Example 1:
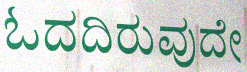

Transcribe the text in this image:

ಓದದಿರುವುದೇ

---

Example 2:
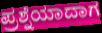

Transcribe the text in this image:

ಪ್ರಶ್ನೆಯಾದಾಗ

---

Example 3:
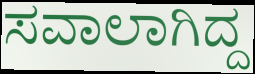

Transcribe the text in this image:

ಸವಾಲಾಗಿದ್ದ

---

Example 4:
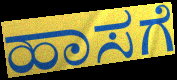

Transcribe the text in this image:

ಹಾಸಗೆ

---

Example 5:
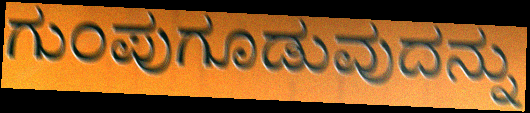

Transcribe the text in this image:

ಗುಂಪುಗೂಡುವುದನ್ನು